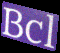
Bcl